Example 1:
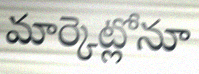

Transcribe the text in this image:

మార్కెట్లోనూ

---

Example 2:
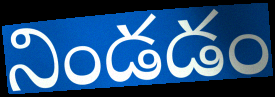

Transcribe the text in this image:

నిండడం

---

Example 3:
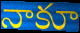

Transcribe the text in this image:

నాకూ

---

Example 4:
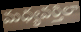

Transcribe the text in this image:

మధ్యవర్తిలా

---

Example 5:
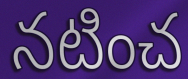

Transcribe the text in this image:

నటించ